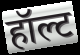
हॉल्ट